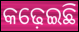
କଢ଼େଇଛି